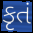
કૃતં